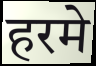
हरमे